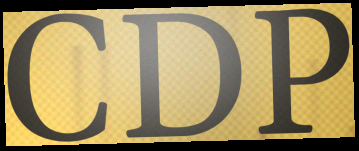
CDP